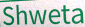
Shweta